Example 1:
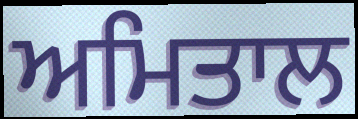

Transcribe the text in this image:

ਅਮਿਤਾਲ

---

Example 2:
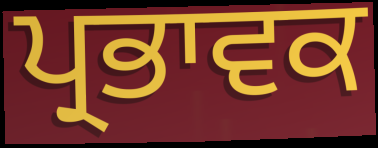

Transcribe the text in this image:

ਪ੍ਰਭਾਵਕ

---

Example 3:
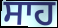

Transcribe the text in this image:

ਸਾਹ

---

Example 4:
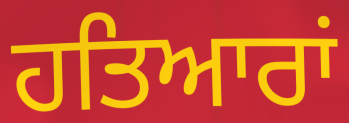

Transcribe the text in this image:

ਹਤਿਆਰਾਂ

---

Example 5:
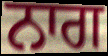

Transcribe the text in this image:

ਨਾਗ